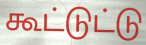
கூட்டுட்டு